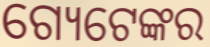
ଗ୍ୟେଟେଙ୍କର